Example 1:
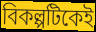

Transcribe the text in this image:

বিকল্পটিকেই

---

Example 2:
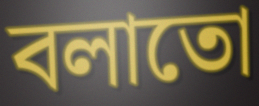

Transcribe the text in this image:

বলাতো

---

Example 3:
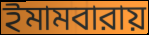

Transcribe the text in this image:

ইমামবারায়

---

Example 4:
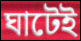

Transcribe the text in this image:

ঘাটেই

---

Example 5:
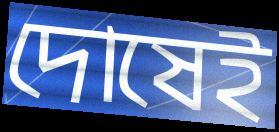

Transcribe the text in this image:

দোষেই